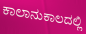
ಕಾಲಾನುಕಾಲದಲ್ಲಿ